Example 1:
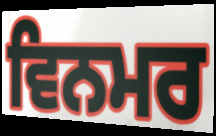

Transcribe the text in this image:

ਵਿਨਮਰ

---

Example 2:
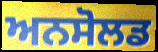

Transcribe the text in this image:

ਅਨਸੋਲਡ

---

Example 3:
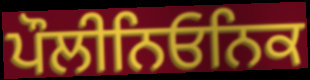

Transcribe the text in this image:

ਪੌਲੀਨਿਓਨਿਕ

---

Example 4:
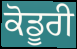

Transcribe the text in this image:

ਕੋਡੂਰੀ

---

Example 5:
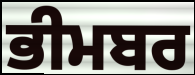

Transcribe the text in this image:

ਭੀਮਬਰ